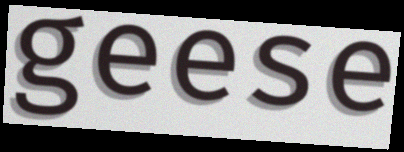
geese